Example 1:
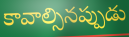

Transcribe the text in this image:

కావాల్సినప్పుడు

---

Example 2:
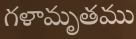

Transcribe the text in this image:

గళామృతము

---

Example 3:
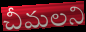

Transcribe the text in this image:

చీమలని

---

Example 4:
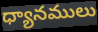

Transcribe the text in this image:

ధ్యానములు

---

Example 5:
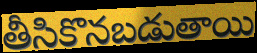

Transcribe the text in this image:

తీసికొనబడుతాయి